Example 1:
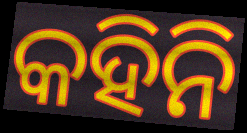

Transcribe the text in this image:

କହିନି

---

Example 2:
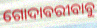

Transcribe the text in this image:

ଗୋଦାବରୀବାବୁ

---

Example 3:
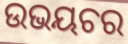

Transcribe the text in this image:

ଉଭୟଚର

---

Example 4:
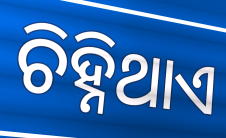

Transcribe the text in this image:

ଚିହ୍ନିଥାଏ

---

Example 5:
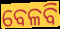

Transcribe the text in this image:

ବେଳବି